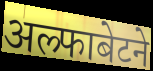
अल्फाबेटने